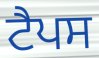
ਟੈਪਸ